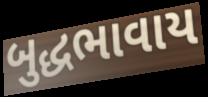
બુદ્ધભાવાય